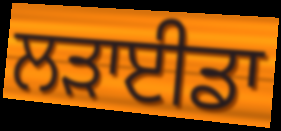
ਲੜਾਈਡਾ